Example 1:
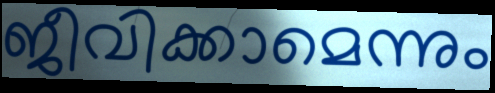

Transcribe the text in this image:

ജീവിക്കാമെന്നും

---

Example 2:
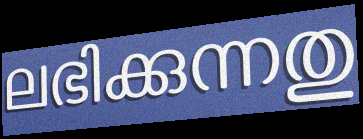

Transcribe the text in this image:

ലഭിക്കുന്നതു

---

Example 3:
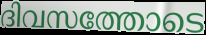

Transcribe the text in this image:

ദിവസത്തോടെ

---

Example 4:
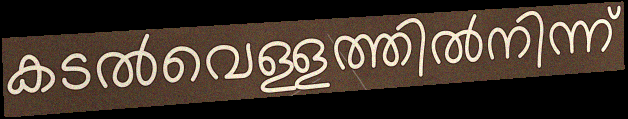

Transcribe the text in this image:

കടൽവെള്ളത്തിൽനിന്ന്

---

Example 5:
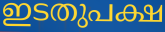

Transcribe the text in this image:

ഇടതുപക്ഷ